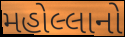
મહોલ્લાનો